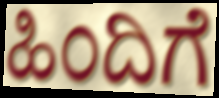
ಹಿಂದಿಗೆ